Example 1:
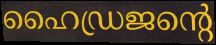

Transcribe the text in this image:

ഹൈഡ്രജന്റെ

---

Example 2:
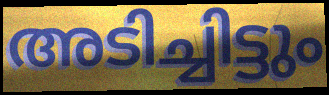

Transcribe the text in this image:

അടിച്ചിട്ടും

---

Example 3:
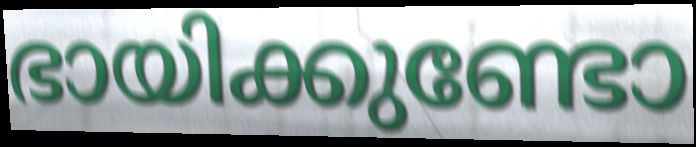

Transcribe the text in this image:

ഭായിക്കുണ്ടോ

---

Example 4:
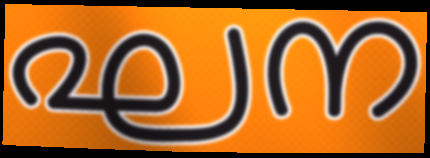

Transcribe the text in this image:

ഘന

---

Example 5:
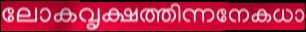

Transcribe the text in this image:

ലോകവൃക്ഷത്തിന്നനേകധാ